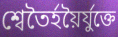
শ্বেতৈর্হয়ৈর্যুক্তে